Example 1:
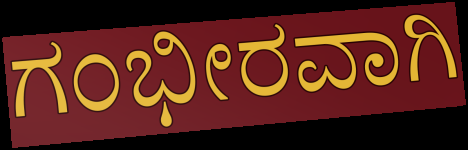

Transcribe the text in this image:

ಗಂಭೀರವಾಗಿ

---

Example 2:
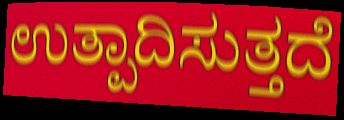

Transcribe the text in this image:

ಉತ್ಪಾದಿಸುತ್ತದೆ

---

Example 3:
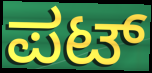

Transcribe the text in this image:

ಪಟ್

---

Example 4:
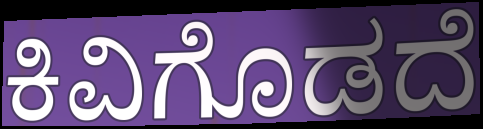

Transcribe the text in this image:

ಕಿವಿಗೊಡದೆ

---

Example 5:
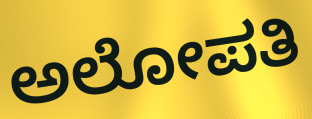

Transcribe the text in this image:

ಅಲೋಪತಿ